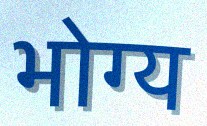
भोग्य